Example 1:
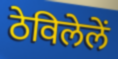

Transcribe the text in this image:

ठेविलेलें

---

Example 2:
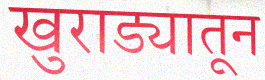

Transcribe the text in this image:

खुराड्यातून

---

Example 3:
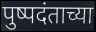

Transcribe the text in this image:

पुष्पदंताच्या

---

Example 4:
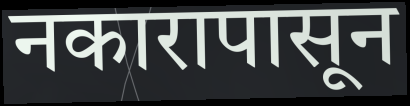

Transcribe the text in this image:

नकारापासून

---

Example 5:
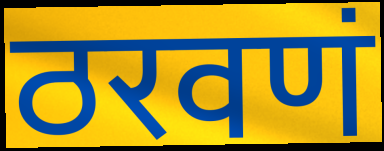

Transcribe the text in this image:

ठरवणं